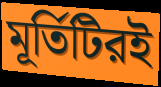
মূর্তিটিরই